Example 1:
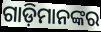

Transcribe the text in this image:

ଗାଡ଼ିମାନଙ୍କର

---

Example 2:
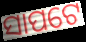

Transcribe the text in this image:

ସାପଟେ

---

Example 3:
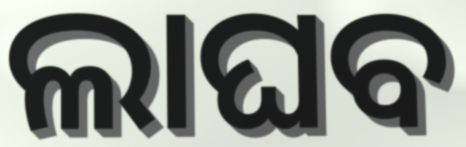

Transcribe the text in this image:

ଲାଘବ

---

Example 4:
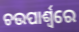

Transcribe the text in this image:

ଚଉପାର୍ଶ୍ୱରେ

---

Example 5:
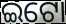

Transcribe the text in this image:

ଇଟୋ